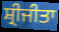
ਸ਼੍ਰੀਜੀਤਾ